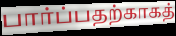
பார்ப்பதற்காகத்